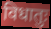
विधातुः